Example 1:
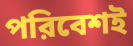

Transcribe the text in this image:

পরিবেশই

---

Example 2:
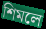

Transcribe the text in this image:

শিমলে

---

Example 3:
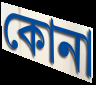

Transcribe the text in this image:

কোনা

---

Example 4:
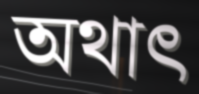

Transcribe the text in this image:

অথাৎ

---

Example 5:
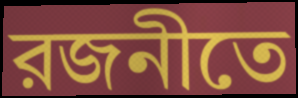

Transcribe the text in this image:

রজনীতে